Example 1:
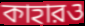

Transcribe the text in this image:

কাহারও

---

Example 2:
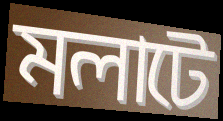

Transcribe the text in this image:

মলাটে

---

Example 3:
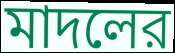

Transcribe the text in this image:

মাদলের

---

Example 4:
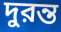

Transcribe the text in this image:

দুরন্ত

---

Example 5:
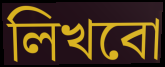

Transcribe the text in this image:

লিখবো